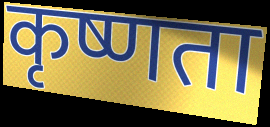
कृष्णता